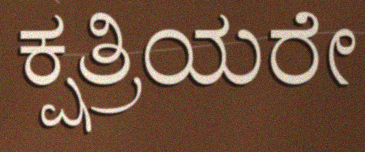
ಕ್ಷತ್ರಿಯರೇ